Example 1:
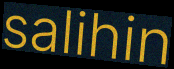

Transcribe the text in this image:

salihin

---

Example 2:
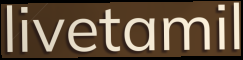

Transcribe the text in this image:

livetamil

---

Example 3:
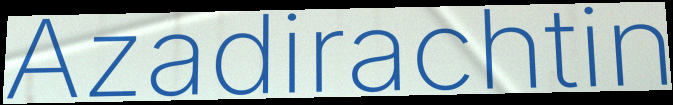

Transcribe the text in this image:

Azadirachtin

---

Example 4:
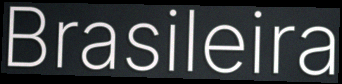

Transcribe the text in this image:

Brasileira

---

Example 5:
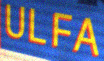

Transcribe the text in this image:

ULFA